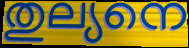
തുല്യനെ